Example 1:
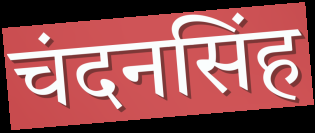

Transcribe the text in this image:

चंदनसिंह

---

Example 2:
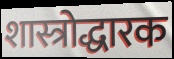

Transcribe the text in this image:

शास्त्रोद्धारक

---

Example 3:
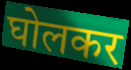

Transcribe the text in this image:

घोलकर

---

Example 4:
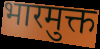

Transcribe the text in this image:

भारमुक्त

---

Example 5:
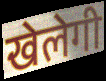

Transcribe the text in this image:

खेलेगी